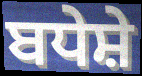
ਬਧੇਸ਼ੇ